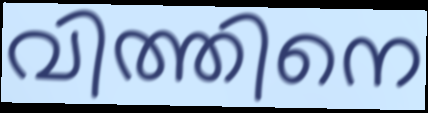
വിത്തിനെ